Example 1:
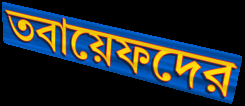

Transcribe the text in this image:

তবায়েফদের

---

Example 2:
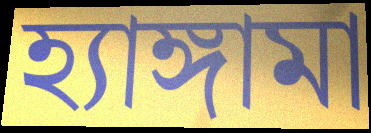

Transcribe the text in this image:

হ্যাঙ্গামা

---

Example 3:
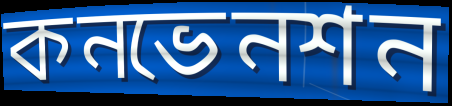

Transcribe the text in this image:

কনভেনশন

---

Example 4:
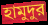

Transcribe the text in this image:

হামুদুর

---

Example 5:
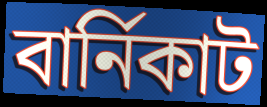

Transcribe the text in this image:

বার্নিকাট